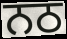
ਨਠ